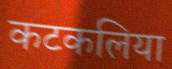
कटकलिया